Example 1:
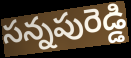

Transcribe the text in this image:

సన్నపురెడ్డి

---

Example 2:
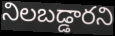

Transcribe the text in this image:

నిలబడ్డారని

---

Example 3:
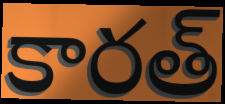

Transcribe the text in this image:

కారత్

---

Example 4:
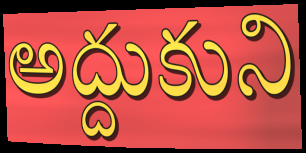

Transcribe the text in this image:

అద్దుకుని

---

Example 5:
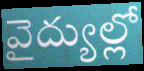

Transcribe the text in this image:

వైద్యుల్లో